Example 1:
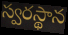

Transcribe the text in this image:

స్వరస్థాన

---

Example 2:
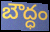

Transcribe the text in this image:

బౌద్ధం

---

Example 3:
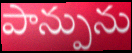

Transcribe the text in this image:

పాన్పును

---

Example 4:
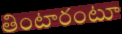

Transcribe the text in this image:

తింటారంటూ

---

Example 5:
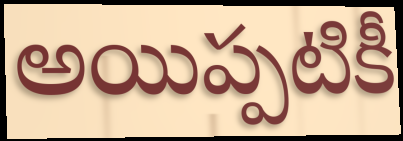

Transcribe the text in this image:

అయిప్పటికీ